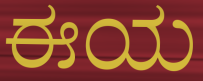
ಈಯ